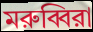
মরুব্বিরা